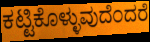
ಕಟ್ಟಿಕೊಳ್ಳುವುದೆಂದರೆ